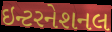
ઇન્ટરનેશનલ